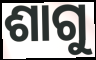
ଶାଗୁ